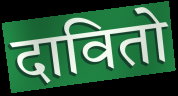
दावितो